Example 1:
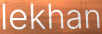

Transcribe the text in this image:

lekhan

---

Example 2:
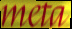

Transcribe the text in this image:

meta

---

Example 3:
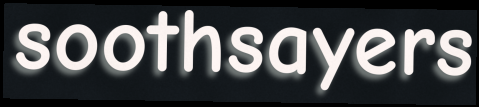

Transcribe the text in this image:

soothsayers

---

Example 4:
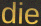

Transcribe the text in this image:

die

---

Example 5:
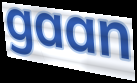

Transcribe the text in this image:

gaan